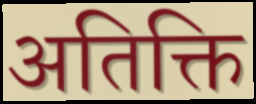
अतिक्ति